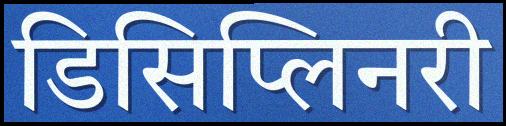
डिसिप्लिनरी